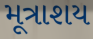
મૂત્રાશય